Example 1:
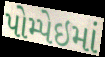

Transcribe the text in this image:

પોમ્પેઇમાં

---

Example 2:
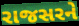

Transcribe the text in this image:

રાજસરને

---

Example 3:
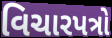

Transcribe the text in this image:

વિચારપત્રો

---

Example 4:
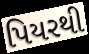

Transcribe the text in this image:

પિયરથી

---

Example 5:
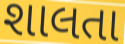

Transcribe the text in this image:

શાલતા